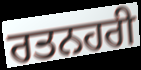
ਰਤਨਹਰੀ